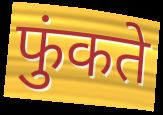
फुंकते